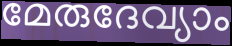
മേരുദേവ്യാം